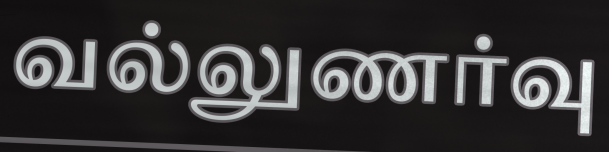
வல்லுணர்வு